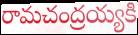
రామచంద్రయ్యకి